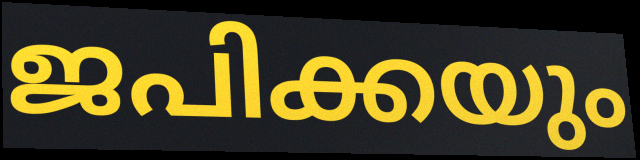
ജപിക്കയും